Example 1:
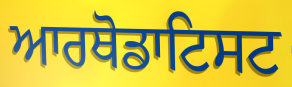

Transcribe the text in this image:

ਆਰਥੋਡਾਟਿਸਟ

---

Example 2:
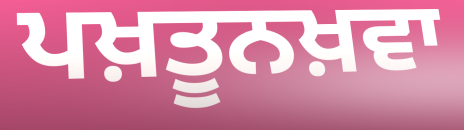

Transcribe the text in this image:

ਪਖ਼ਤੂਨਖ਼ਵਾ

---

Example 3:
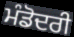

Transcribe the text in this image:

ਮੰਡੋਦਰੀ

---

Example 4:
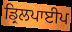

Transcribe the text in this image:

ਡ੍ਰਿਲਪਾਈਪ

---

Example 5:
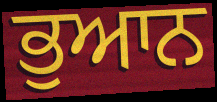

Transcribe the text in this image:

ਭੁਆਨ